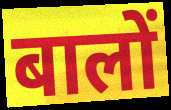
बालों